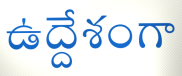
ఉద్దేశంగా